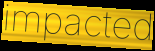
impacted